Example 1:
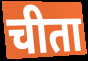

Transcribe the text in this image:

चीता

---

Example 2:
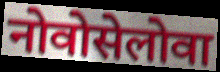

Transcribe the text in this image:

नोवोसेलोवा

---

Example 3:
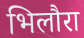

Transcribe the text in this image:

भिलौरा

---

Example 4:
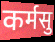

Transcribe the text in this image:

कर्मसु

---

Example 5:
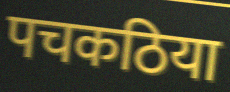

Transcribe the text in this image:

पचकठिया